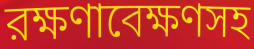
রক্ষণাবেক্ষণসহ